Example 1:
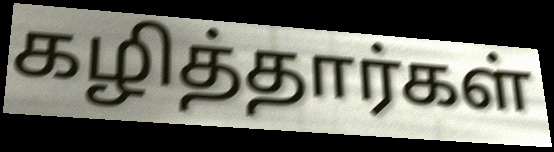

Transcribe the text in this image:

கழித்தார்கள்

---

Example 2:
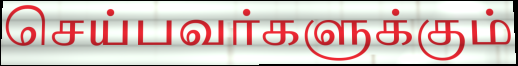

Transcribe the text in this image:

செய்பவர்களுக்கும்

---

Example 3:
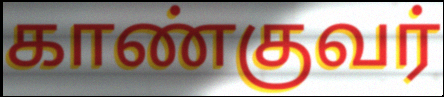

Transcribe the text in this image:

காண்குவர்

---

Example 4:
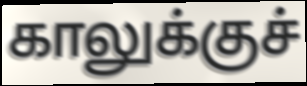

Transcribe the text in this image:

காலுக்குச்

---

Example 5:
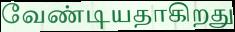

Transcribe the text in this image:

வேண்டியதாகிறது